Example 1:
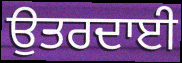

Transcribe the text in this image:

ਉਤਰਦਾਈ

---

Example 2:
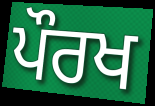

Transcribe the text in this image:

ਪੌਰਖ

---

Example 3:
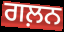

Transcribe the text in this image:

ਗਲ਼ਨ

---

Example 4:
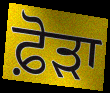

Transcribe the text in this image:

ਫ਼ੋੜਾ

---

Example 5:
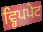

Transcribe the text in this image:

ਵ੍ਹਿਪਪੇਟ